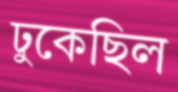
ঢুকেছিল